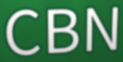
CBN